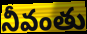
నీవంతు